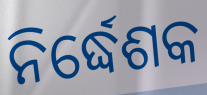
ନିର୍ଦ୍ଧେଶକ